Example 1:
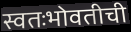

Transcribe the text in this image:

स्वतःभोवतीची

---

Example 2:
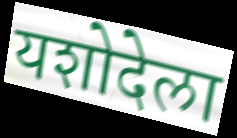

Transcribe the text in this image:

यशोदेला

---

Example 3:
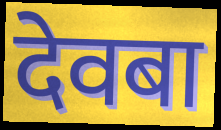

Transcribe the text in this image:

देवबा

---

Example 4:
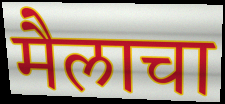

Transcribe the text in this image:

मैलाचा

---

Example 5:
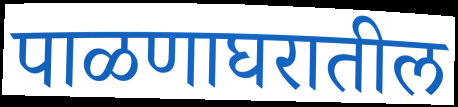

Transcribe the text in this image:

पाळणाघरातील